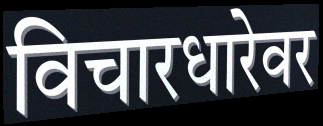
विचारधारेवर